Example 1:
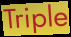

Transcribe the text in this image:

Triple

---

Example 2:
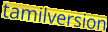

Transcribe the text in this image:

tamilversion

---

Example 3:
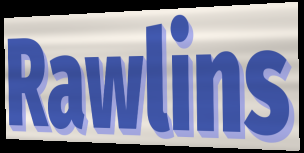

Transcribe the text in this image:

Rawlins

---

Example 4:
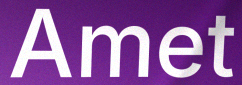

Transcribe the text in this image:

Amet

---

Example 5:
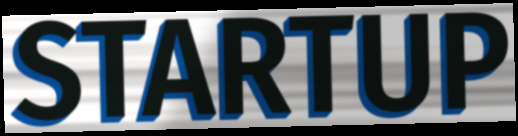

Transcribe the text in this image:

STARTUP